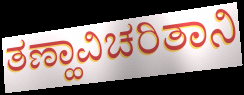
ತಣ್ಹಾವಿಚರಿತಾನಿ